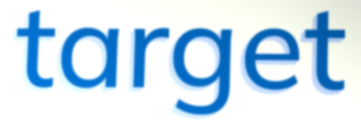
target